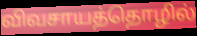
விவசாயத்தொழில்